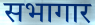
सभागार